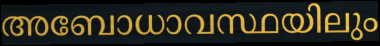
അബോധാവസ്ഥയിലും